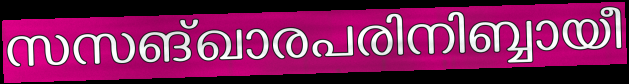
സസങ്ഖാരപരിനിബ്ബായീ